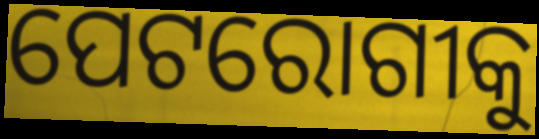
ପେଟରୋଗୀକୁ